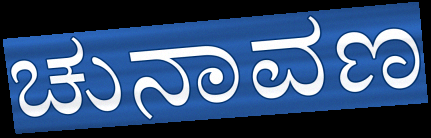
ಚುನಾವಣ